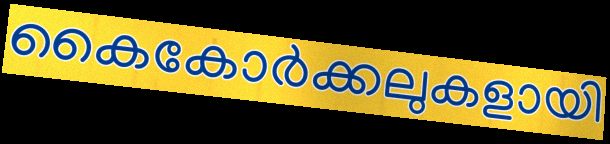
കൈകോർക്കലുകളായി